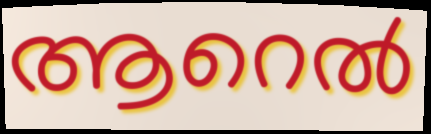
ആറെൽ